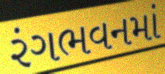
રંગભવનમાં